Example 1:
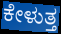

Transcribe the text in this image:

ಕೇಳುತ್ತ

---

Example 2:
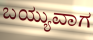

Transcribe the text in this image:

ಬಯ್ಯುವಾಗ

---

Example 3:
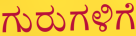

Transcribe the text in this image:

ಗುರುಗಳಿಗೆ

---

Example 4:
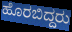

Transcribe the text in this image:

ಹೊರಬಿದ್ದರು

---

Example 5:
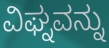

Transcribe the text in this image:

ವಿಘ್ನವನ್ನು